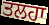
ਤਲਹਾ